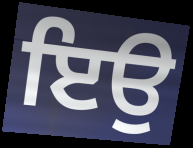
ਇਉ